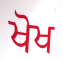
ਖੋਖ